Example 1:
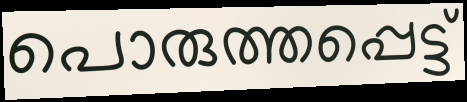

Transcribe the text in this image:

പൊരുത്തപ്പെട്ട്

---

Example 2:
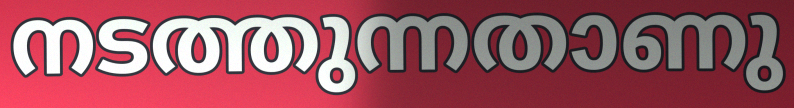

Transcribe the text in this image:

നടത്തുന്നതാണു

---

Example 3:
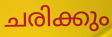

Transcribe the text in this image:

ചരിക്കും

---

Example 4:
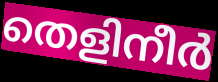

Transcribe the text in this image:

തെളിനീർ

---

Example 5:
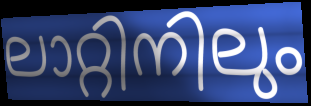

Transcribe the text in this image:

ലാറ്റിനിലും